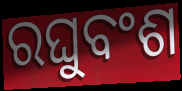
ରଘୁବଂଶ